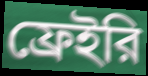
ফ্রেইরি